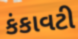
કંકાવટી